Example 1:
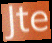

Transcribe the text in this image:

Jte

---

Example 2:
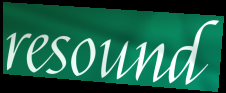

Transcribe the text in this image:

resound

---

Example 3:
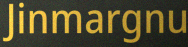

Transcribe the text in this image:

Jinmargnu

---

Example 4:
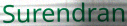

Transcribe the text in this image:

Surendran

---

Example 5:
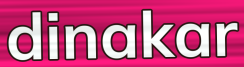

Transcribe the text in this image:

dinakar